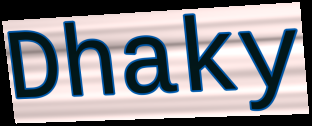
Dhaky